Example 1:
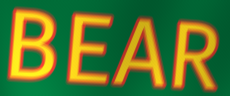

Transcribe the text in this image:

BEAR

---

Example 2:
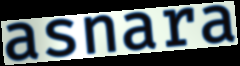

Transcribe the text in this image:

asnara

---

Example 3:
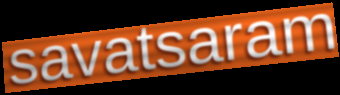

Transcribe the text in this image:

savatsaram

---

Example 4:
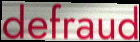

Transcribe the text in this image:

defraud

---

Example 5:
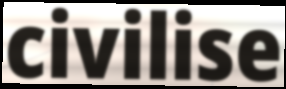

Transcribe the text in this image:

civilise